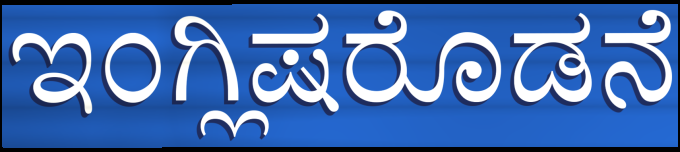
ಇಂಗ್ಲಿಷರೊಡನೆ